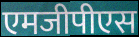
एमजीपीएस